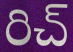
రిచ్